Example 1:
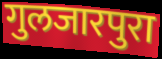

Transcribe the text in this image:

गुलजारपुरा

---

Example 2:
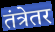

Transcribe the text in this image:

तंत्रेतर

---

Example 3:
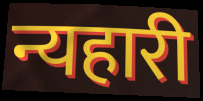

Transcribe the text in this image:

न्यहारी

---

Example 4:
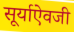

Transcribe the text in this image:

सूर्याऐवजी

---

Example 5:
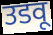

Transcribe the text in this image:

उडवू